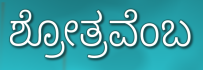
ಶ್ರೋತ್ರವೆಂಬ